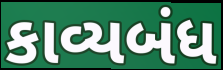
કાવ્યબંધ